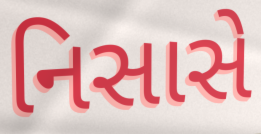
નિસાસે